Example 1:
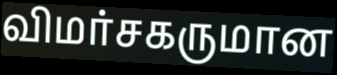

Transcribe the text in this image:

விமர்சகருமான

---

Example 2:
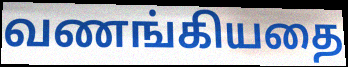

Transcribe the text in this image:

வணங்கியதை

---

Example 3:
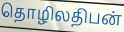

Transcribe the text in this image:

தொழிலதிபன்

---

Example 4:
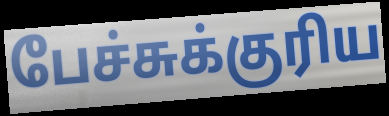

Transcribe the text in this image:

பேச்சுக்குரிய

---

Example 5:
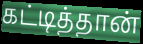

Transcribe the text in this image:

கட்டித்தான்